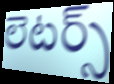
లెటర్స్